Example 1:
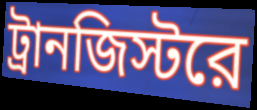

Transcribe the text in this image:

ট্রানজিস্টরে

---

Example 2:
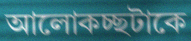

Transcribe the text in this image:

আলোকচ্ছটাকে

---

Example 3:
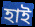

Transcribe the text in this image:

হাই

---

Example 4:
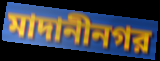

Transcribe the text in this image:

মাদানীনগর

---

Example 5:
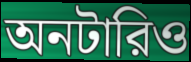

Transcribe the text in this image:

অনটারিও